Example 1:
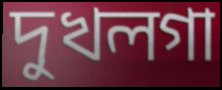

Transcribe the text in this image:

দুখলগা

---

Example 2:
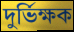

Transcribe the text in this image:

দুৰ্ভিক্ষক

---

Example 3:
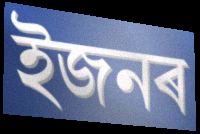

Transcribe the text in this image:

ইজনৰ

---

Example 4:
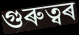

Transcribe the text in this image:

গুৰুত্বৰ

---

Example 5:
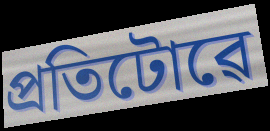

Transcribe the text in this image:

প্ৰতিটোৱে